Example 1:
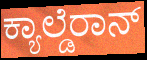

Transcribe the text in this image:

ಕ್ಯಾಲ್ಡೆರಾನ್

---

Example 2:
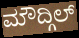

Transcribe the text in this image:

ಮೌದ್ಗಿಲ್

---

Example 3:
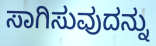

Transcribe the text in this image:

ಸಾಗಿಸುವುದನ್ನು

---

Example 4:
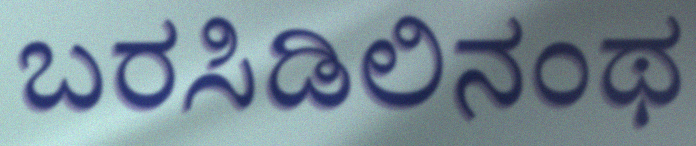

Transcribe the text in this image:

ಬರಸಿಡಿಲಿನಂಥ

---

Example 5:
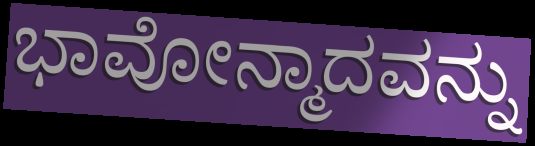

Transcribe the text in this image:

ಭಾವೋನ್ಮಾದವನ್ನು